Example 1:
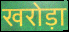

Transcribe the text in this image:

खरोड़ा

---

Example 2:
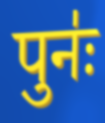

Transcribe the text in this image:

पुनः॑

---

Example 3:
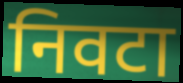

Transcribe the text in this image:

निवटा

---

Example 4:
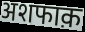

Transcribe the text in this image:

अशफाक़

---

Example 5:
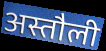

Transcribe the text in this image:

अस्तौली